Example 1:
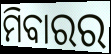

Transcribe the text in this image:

ମିବାରର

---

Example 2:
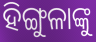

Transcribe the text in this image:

ହିଙ୍ଗୁଳାଙ୍କୁ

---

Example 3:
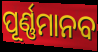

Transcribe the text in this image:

ପୂର୍ଣ୍ଣମାନବ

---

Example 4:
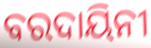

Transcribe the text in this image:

ବରଦାୟିନୀ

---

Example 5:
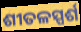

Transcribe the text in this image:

ଶୀତଳସ୍ପର୍ଶ